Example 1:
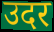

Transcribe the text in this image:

उदर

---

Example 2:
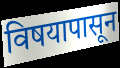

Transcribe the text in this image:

विषयापासून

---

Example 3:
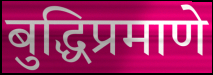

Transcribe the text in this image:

बुद्धिप्रमाणे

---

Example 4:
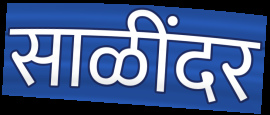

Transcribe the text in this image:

साळींदर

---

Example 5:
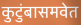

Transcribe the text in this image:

कुटुंबासमवेत